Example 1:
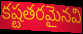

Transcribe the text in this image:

కష్టతరమైనవి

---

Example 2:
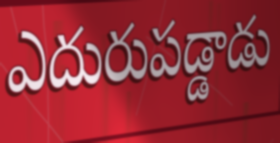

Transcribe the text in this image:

ఎదురుపడ్డాడు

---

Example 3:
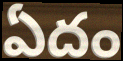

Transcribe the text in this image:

ఏదం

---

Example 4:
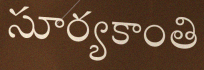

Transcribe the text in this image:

సూర్యకాంతి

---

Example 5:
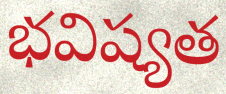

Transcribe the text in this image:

భవిష్యత